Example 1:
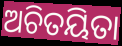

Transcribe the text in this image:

ଅଚିତୟିତା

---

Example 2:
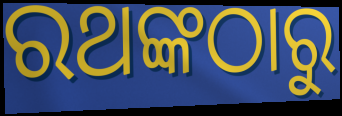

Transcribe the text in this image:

ରଥଙ୍କଠାରୁ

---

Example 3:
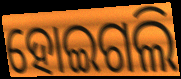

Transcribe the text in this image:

ହୋଇଗଲି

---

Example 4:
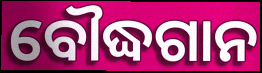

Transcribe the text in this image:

ବୌଦ୍ଧଗାନ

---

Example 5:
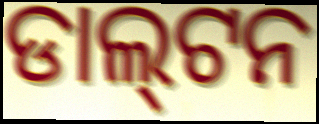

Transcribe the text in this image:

ଡାଲ୍‌ଟନ